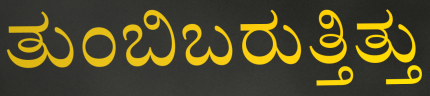
ತುಂಬಿಬರುತ್ತಿತ್ತು